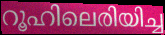
റൂഹിലെരിയിച്ച